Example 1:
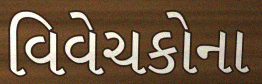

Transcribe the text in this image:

વિવેચકોના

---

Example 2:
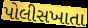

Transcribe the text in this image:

પોલીસખાતા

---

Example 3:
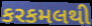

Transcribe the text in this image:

કરકમલથી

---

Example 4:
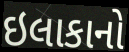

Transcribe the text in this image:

ઇલાકાનો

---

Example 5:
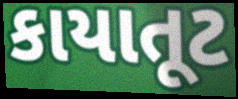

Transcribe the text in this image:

કાયાતૂટ